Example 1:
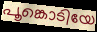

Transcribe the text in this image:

പൂങ്കൊടിയേ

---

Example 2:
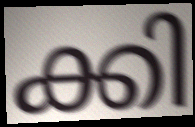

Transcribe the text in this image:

ക്കി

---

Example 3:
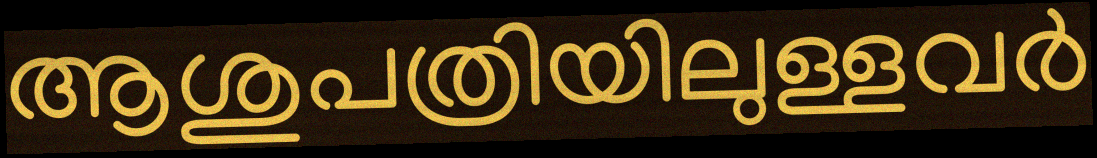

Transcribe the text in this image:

ആശുപത്രിയിലുള്ളവർ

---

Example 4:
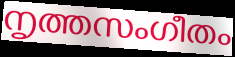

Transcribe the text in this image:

നൃത്തസംഗീതം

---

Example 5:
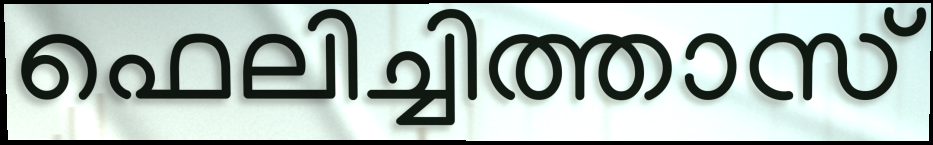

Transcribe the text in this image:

ഫെലിച്ചിത്താസ്